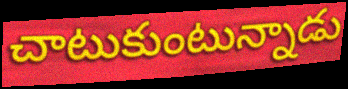
చాటుకుంటున్నాడు